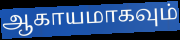
ஆகாயமாகவும்